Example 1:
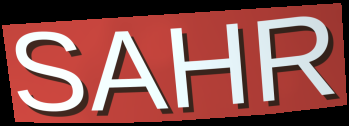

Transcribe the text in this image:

SAHR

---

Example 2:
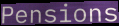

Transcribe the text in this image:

Pensions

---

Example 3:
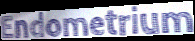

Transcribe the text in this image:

Endometrium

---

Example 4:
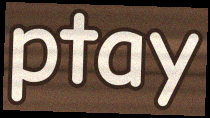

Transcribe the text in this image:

ptay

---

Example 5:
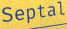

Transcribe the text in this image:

Septal